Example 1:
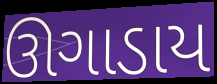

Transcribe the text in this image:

ઊગાડાય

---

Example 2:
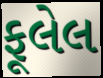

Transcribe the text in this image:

ફૂલેલ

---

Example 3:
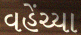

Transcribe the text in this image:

વહેંચ્યા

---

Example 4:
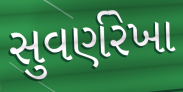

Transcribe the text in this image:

સુવર્ણરેખા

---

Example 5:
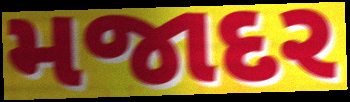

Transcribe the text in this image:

મજાદર